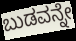
ಬುಡವನ್ನೇ